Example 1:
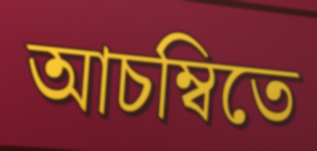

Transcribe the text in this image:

আচম্বিতে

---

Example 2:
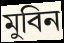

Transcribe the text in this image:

মুবিন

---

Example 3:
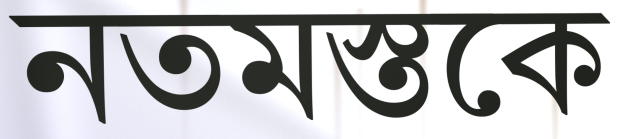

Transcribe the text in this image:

নতমস্তকে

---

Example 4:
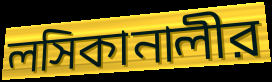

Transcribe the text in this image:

লসিকানালীর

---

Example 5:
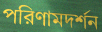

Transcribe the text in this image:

পরিণামদর্শন